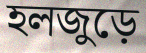
হলজুড়ে